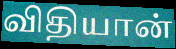
விதியான்